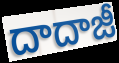
దాదాజీ